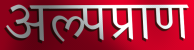
अल्पप्राण